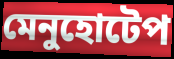
মেনুহোটেপ